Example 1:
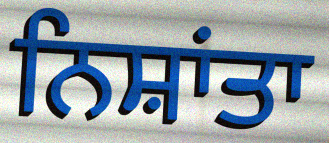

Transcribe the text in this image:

ਨਿਸ਼ਾਂਤਾ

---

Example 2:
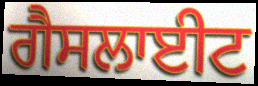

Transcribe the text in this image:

ਗੈਸਲਾਈਟ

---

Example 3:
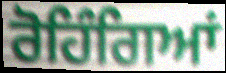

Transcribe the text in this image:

ਰੋਹਿੰਗਿਆਂ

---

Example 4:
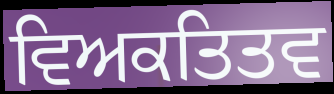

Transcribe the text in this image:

ਵਿਅਕਤਿਤਵ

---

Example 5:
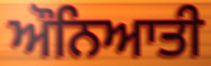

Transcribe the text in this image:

ਔਨਿਆਤੀ